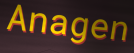
Anagen